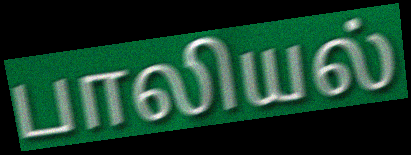
பாலியல்